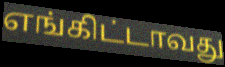
எங்கிட்டாவது